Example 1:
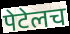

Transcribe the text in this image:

पेटेलच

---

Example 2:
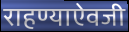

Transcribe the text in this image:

राहण्याऐवजी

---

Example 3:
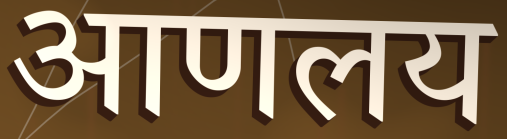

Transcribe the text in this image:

आणलय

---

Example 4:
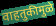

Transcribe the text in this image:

वाहतुकीमुळे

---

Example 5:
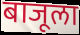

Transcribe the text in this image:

बाजूला